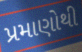
પ્રમાણોથી